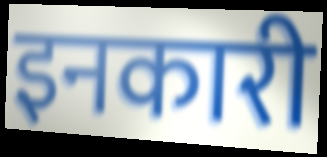
इनकारी